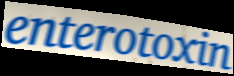
enterotoxin